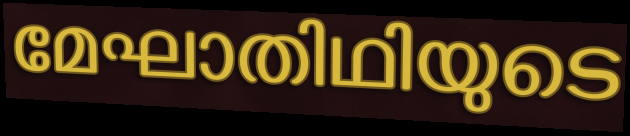
മേഘാതിഥിയുടെ